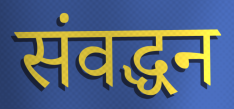
संवद्धन